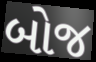
બોજ